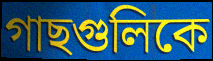
গাছগুলিকে